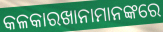
କଳକାରଖାନାମାନଙ୍କରେ